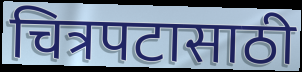
चित्रपटासाठी